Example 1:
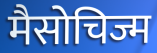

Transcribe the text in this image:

मैसोचिज्म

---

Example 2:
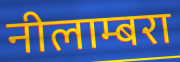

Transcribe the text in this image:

नीलाम्बरा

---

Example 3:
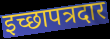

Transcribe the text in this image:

इच्छापत्रदार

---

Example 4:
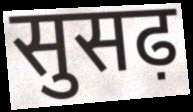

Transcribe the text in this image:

सुसढ़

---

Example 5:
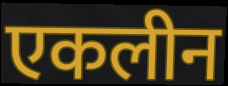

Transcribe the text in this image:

एकलीन